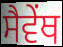
ਸੈਵੇਂਥ